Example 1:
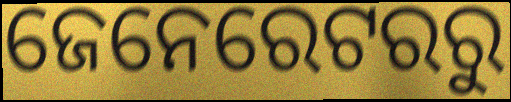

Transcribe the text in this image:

ଜେନେରେଟରରୁ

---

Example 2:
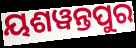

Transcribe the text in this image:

ୟଶୱନ୍ତପୁର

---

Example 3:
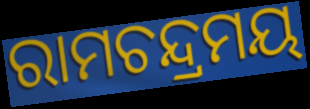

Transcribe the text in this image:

ରାମଚନ୍ଦ୍ରମୟ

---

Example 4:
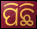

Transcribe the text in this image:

ପିଛି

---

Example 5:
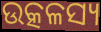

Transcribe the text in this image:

ଉତ୍କଳସ୍ୟ